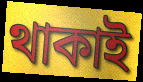
থাকাই